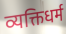
व्यक्तिधर्म